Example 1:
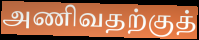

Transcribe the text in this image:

அணிவதற்குத்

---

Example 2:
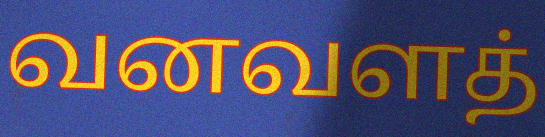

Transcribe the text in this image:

வனவளத்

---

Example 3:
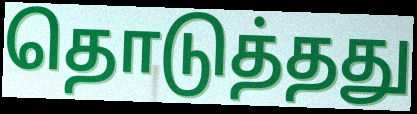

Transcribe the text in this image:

தொடுத்தது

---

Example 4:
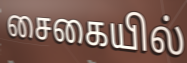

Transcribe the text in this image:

சைகையில்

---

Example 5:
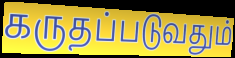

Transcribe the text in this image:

கருதப்படுவதும்